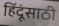
हिंदूंसाठी